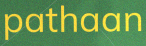
pathaan